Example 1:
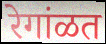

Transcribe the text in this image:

रेगांळत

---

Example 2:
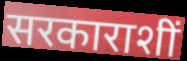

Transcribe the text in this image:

सरकाराशीं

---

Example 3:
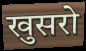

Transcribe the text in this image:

खुसरो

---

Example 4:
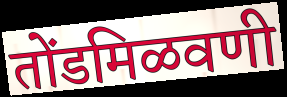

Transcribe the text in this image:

तोंडमिळवणी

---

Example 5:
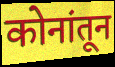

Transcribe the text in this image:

कोनांतून